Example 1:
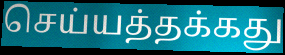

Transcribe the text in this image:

செய்யத்தக்கது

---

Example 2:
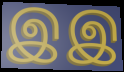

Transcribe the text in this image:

இஇ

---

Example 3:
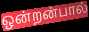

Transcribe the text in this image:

ஒன்றன்பால்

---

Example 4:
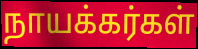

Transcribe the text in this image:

நாயக்கர்கள்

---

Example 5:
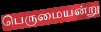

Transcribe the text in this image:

பெருமையன்று